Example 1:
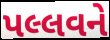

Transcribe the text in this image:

પલ્લવને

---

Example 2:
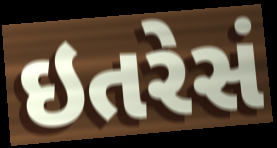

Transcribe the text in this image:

ઇતરેસં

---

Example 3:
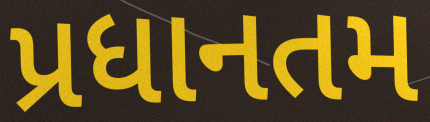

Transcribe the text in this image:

પ્રધાનતમ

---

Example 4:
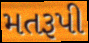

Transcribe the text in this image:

મતરૂપી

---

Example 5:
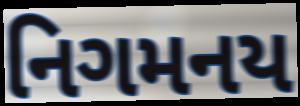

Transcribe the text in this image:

નિગમનય